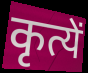
कृत्यें